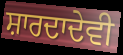
ਸ਼ਾਰਦਾਦੇਵੀ